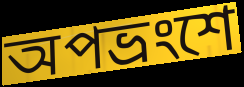
অপভ্রংশে